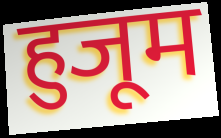
हुजूम